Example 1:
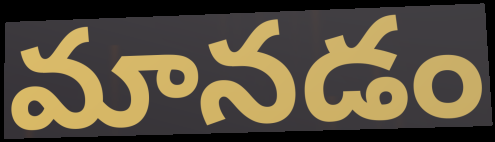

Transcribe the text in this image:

మానడం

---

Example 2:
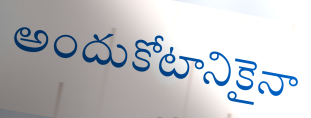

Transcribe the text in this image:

అందుకోటానికైనా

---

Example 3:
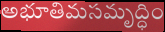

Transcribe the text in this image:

అభూతిమసమృద్ధిం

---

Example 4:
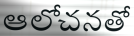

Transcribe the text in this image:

ఆలోచనతో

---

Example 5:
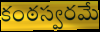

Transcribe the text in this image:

కంఠస్వరమే